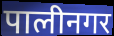
पालीनगर